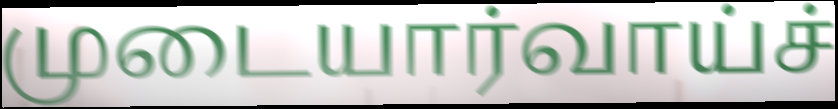
முடையார்வாய்ச்